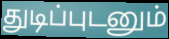
துடிப்புடனும்